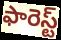
ఫారెస్ట్